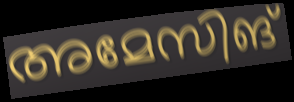
അമേസിങ്